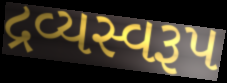
દ્રવ્યસ્વરૂપ